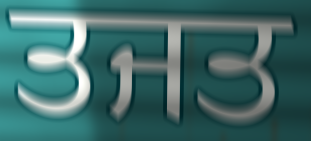
ਤਜਤ